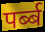
पर्ब्ब